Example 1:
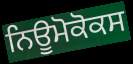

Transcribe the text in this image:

ਨਿਊਮੋਕੋਕਸ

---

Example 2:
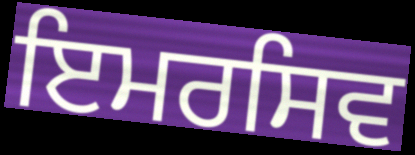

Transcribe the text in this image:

ਇਮਰਸਿਵ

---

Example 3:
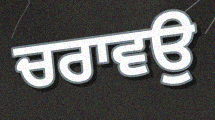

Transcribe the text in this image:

ਚਰਾਵਉ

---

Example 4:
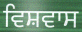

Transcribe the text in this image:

ਵਿਸ਼ਵਾਸ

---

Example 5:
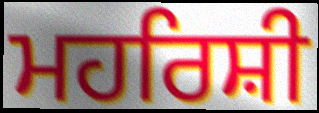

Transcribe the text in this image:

ਮਹਰਿਸ਼ੀ